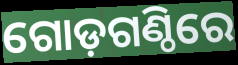
ଗୋଡ଼ଗଣ୍ଠିରେ